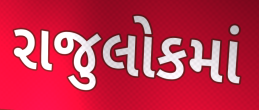
રાજુલોકમાં